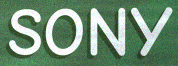
SONY